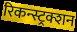
रिकन्स्ट्रक्शन